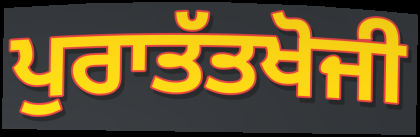
ਪੁਰਾਤੱਤਖੋਜੀ